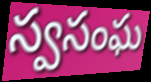
స్వసంఘ